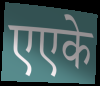
एएके